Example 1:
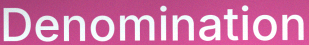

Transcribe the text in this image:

Denomination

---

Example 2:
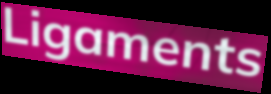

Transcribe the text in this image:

Ligaments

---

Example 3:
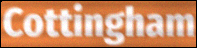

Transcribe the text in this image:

Cottingham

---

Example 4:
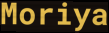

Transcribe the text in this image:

Moriya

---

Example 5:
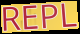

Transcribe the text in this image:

REPL